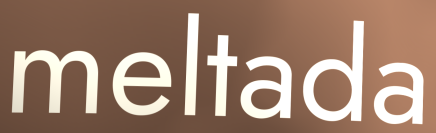
meltada